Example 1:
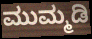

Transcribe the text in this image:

ಮುಮ್ಮಡಿ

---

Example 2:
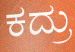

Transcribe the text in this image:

ಕದ್ರು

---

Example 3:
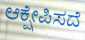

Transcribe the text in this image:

ಆಕ್ಷೇಪಿಸದೆ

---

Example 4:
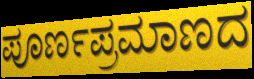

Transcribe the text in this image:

ಪೂರ್ಣಪ್ರಮಾಣದ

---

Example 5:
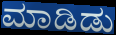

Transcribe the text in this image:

ಮಾಡಿಡು